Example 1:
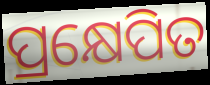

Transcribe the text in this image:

ପ୍ରକ୍ଷେପିତ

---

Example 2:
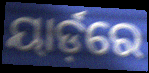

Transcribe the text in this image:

ୟାର୍ଡ଼ରେ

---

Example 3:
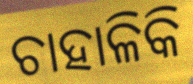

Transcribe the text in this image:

ଚାହାଳିକି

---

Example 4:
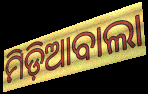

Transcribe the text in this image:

ମିଡ଼ିଆବାଲା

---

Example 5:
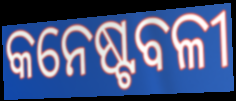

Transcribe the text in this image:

କନେଷ୍ଟବଳୀ